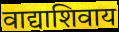
वाद्याशिवाय